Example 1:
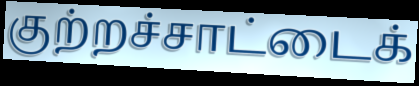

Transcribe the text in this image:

குற்றச்சாட்டைக்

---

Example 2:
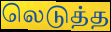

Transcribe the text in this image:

லெடுத்த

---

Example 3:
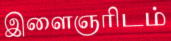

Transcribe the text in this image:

இளைஞரிடம்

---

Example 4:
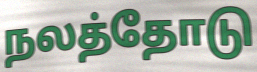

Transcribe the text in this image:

நலத்தோடு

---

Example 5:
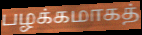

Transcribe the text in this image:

பழக்கமாகத்